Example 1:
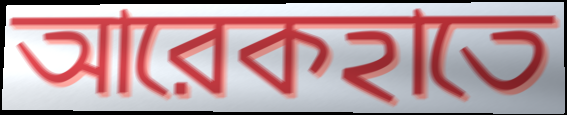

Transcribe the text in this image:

আরেকহাতে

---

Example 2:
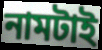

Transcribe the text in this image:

নামটাই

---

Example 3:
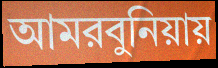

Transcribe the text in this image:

আমরবুনিয়ায়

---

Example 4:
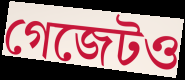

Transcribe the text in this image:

গেজেটও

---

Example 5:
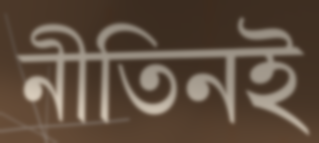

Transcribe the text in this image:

নীতিনই